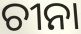
ଚୀନା